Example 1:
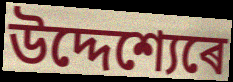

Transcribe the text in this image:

উদ্দেশ্যেৰে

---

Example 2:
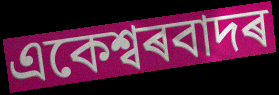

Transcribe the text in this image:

একেশ্বৰবাদৰ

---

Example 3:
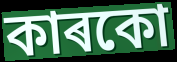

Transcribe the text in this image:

কাৰকো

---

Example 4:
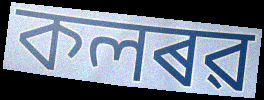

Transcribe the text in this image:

কলৰৱ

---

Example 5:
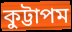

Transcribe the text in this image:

কুট্টাপম